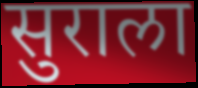
सुराला